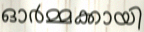
ഓർമ്മക്കായി